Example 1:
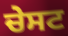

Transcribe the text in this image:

ਚੇਸਟ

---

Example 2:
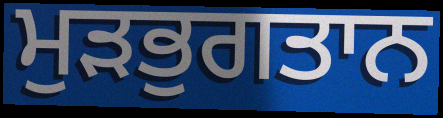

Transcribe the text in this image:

ਮੁੜਭੁਗਤਾਨ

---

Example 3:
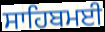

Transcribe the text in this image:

ਸਾਹਿਬਮਈ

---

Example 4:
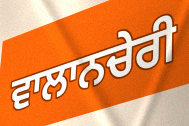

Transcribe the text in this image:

ਵਾਲਾਨਚੇਰੀ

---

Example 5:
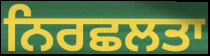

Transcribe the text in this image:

ਨਿਰਛਲਤਾ